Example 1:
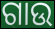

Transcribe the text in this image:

ଗାଉ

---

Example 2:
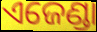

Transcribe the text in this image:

ଏଜେଣ୍ଡା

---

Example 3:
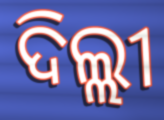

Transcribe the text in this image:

ଦିଲ୍ଲୀ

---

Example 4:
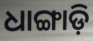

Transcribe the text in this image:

ଧାଙ୍ଗାଡ଼ି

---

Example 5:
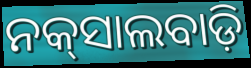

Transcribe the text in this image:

ନକ୍‌ସାଲବାଡ଼ି